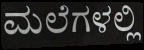
ಮಲೆಗಳಲ್ಲಿ